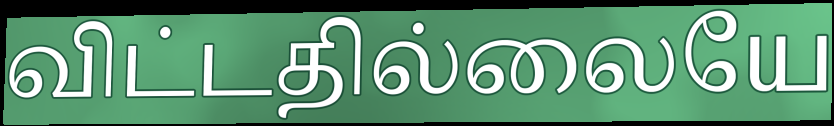
விட்டதில்லையே